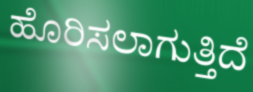
ಹೊರಿಸಲಾಗುತ್ತಿದೆ